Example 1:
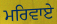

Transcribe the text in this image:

ਮਰਿਵਾਏ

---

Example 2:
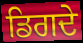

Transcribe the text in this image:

ਡਿਗਦੇ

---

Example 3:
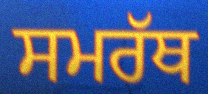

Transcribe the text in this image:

ਸਮਰੱਥ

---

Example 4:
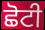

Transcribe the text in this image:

ਛੋਟੀ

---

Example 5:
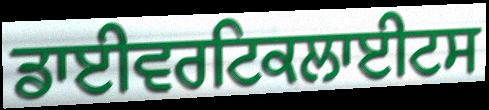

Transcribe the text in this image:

ਡਾਈਵਰਟਿਕਲਾਈਟਸ